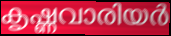
കൃഷ്ണവാരിയർ